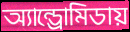
অ্যান্ড্রোমিডায়